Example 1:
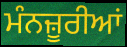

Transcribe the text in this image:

ਮੰਨਜ਼ੂਰੀਆਂ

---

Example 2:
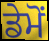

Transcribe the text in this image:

ਡੇਮੋਂ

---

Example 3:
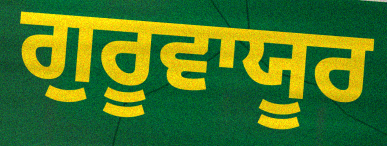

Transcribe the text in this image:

ਗੁਰੂਵਾਯੂਰ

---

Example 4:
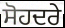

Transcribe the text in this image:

ਸੋਹਦਰੇ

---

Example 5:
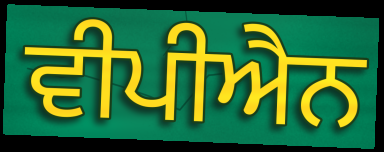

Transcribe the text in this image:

ਵੀਪੀਐਨ